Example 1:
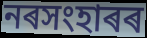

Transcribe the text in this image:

নৰসংহাৰৰ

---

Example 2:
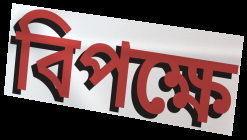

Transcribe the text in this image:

বিপক্ষে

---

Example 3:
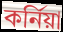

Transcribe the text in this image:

কৰ্নিয়া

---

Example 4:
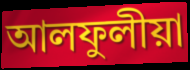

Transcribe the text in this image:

আলফুলীয়া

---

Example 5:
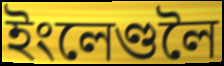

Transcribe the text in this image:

ইংলেণ্ডলৈ